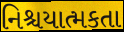
નિશ્ચયાત્મકતા